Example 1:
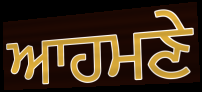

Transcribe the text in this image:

ਆਹਮਣੇ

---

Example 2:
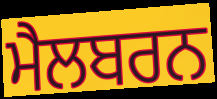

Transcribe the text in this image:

ਮੈਲਬਰਨ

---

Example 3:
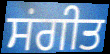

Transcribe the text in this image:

ਸਂਗੀਤ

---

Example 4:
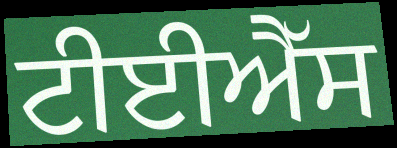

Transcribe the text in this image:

ਟੀਈਐੱਸ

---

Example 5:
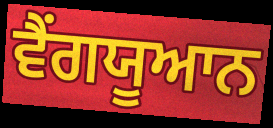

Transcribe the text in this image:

ਵੈਂਗਯੂਆਨ